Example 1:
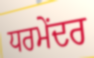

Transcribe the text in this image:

ਧਰਮੇਂਦਰ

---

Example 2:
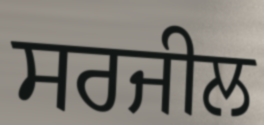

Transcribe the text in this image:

ਸਰਜੀਲ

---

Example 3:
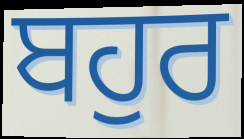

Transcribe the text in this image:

ਬਹੁਰ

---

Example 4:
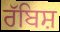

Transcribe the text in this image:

ਰੱਬਿਸ਼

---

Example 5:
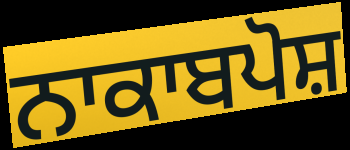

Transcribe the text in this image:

ਨਾਕਾਬਪੋਸ਼